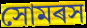
সোমৰস